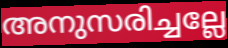
അനുസരിച്ചല്ലേ